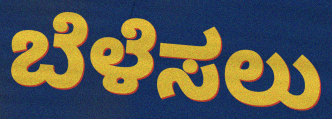
ಬೆಳೆಸಲು